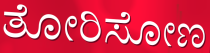
ತೋರಿಸೋಣ